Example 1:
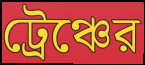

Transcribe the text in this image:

ট্রেঞ্চের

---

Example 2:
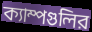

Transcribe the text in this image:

ক্যাম্পগুলির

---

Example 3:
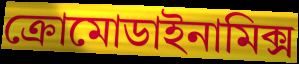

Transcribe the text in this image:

ক্রোমোডাইনামিক্স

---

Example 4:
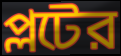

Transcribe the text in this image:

প্লটের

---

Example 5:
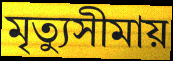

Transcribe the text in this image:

মৃত্যুসীমায়